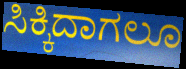
ಸಿಕ್ಕಿದಾಗಲೂ